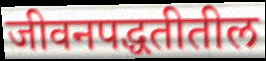
जीवनपद्धतीतील